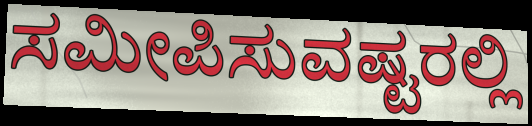
ಸಮೀಪಿಸುವಷ್ಟರಲ್ಲಿ